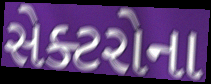
સેક્ટરોના